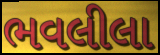
ભવલીલા